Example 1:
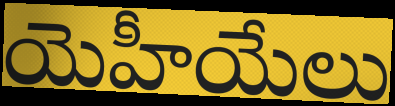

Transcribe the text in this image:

యెహీయేలు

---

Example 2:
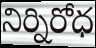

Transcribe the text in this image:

నిర్నిరోధ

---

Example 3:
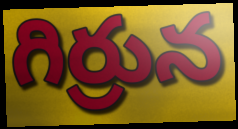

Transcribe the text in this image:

గిర్రున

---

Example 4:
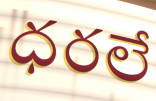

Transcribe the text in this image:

ధరలే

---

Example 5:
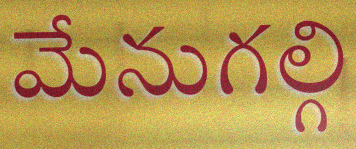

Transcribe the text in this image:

మేనుగల్గి